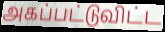
அகப்பட்டுவிட்ட